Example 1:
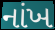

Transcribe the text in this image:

નાંખ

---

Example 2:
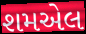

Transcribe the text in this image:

શમએલ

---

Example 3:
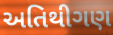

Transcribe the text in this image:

અતિથીગણ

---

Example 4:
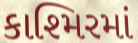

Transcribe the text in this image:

કાશ્મિરમાં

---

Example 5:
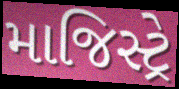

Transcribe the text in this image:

માજિસ્ટ્રે